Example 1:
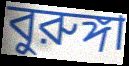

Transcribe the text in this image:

বুরুঙ্গা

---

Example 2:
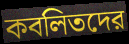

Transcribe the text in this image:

কবলিতদের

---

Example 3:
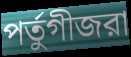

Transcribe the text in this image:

পর্তুগীজরা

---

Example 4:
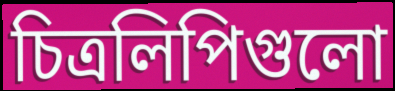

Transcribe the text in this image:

চিত্রলিপিগুলো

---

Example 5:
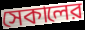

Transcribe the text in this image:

সেকালের